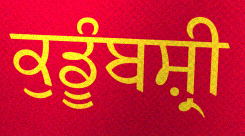
ਕੁਡੂੰਬਸ਼੍ਰੀ